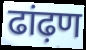
ढांढ़ण